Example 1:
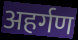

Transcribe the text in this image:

अहर्गण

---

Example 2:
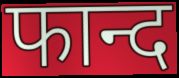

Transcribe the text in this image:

फान्द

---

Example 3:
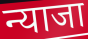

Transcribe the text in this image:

न्याजा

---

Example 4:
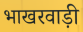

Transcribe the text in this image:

भाखरवाड़ी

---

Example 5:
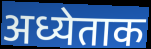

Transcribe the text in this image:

अध्येताक